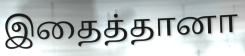
இதைத்தானா